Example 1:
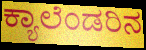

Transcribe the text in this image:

ಕ್ಯಾಲೆಂಡರಿನ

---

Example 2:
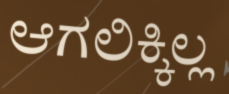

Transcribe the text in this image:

ಆಗಲಿಕ್ಕಿಲ್ಲ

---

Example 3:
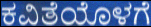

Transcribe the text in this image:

ಕವಿತೆಯೊಳಗೆ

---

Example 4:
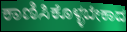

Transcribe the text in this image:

ಕಾಣಿಸಿಕೊಳ್ಳಬೇಕಾದ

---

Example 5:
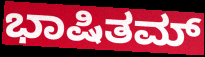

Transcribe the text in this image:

ಭಾಷಿತಮ್